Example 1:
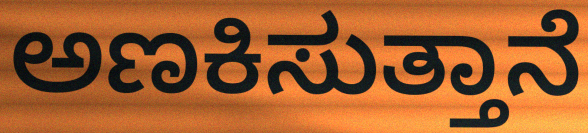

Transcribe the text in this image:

ಅಣಕಿಸುತ್ತಾನೆ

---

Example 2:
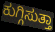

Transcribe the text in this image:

ಕುಗ್ಗಿಸುತ್ತಾ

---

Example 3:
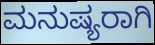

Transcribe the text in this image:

ಮನುಷ್ಯರಾಗಿ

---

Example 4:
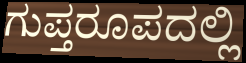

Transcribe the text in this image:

ಗುಪ್ತರೂಪದಲ್ಲಿ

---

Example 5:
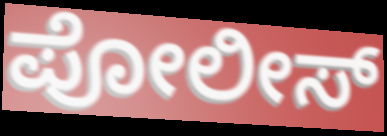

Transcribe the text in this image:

ಪೋಲೀಸ್